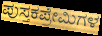
ಪುಸ್ತಕಪ್ರೇಮಿಗಳ